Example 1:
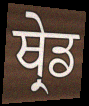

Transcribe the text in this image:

ਥ੍ਰੇਡ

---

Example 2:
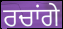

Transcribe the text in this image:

ਰਚਾਂਗੇ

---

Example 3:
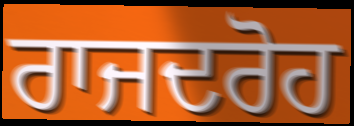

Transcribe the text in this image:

ਰਾਜਦਰੋਹ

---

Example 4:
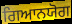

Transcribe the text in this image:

ਗਿਆਨਯੋਗ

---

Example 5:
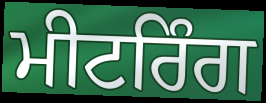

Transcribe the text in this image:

ਮੀਟਰਿੰਗ